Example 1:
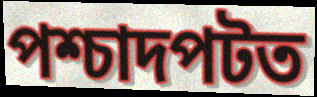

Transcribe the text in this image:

পশ্চাদপটত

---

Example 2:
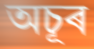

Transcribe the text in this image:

অচূৰ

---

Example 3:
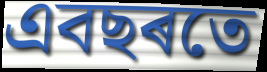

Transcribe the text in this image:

এবছৰতে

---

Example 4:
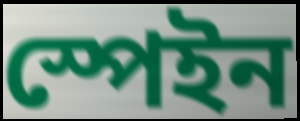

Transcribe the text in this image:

স্পেইন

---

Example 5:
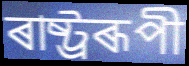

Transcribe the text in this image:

ৰাষ্ট্ৰৰূপী